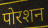
पोरशन